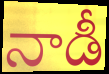
నాడీ